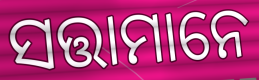
ସତ୍ତାମାନେ